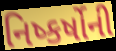
નિષ્કર્ષોની